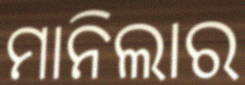
ମାନିଲାର